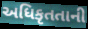
અધિકૃતતાની